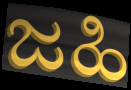
ಜಹಿ